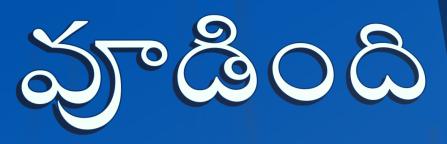
వూడింది